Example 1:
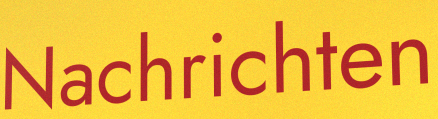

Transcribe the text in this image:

Nachrichten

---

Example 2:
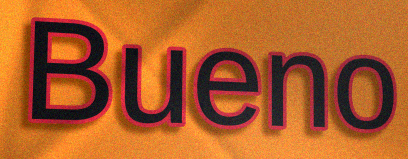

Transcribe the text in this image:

Bueno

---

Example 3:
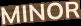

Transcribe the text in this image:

MINOR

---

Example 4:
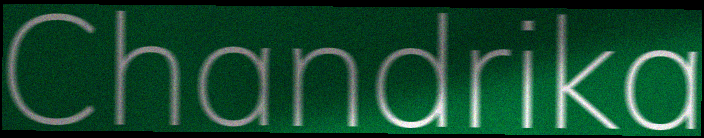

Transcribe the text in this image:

Chandrika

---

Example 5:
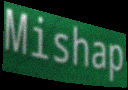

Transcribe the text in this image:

Mishap